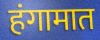
हंगामात